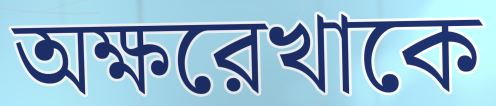
অক্ষরেখাকে